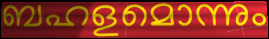
ബഹളമൊന്നും